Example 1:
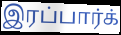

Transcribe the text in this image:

இரப்பார்க்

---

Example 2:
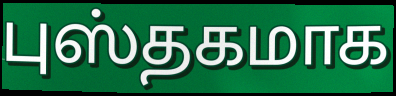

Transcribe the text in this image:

புஸ்தகமாக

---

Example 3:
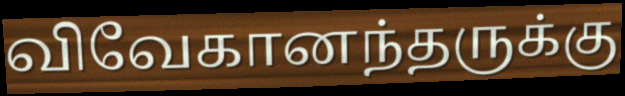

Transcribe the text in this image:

விவேகானந்தருக்கு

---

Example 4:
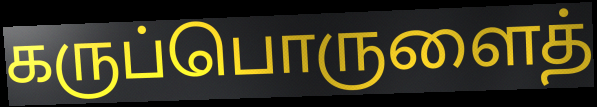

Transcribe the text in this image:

கருப்பொருளைத்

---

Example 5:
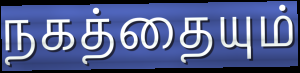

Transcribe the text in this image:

நகத்தையும்